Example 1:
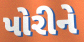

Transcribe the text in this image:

પોરીને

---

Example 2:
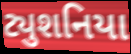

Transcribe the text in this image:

ટ્યુશનિયા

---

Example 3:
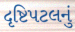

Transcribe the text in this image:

દૃષ્ટિપટલનું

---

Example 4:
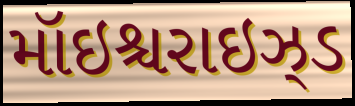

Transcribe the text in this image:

મૉઇશ્ચરાઇઝ્ડ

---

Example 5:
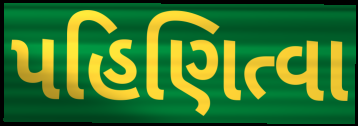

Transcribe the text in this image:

પહિણિત્વા